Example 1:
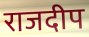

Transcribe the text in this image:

राजदीप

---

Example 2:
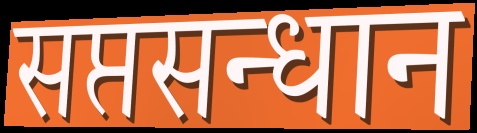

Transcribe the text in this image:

सप्तसन्धान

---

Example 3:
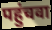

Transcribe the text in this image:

पहुंचवा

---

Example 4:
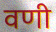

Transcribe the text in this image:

वणी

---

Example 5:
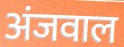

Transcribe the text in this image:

अंजवाल